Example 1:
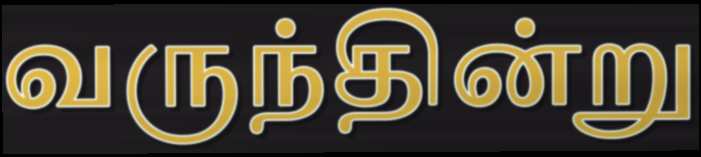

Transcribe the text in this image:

வருந்தின்று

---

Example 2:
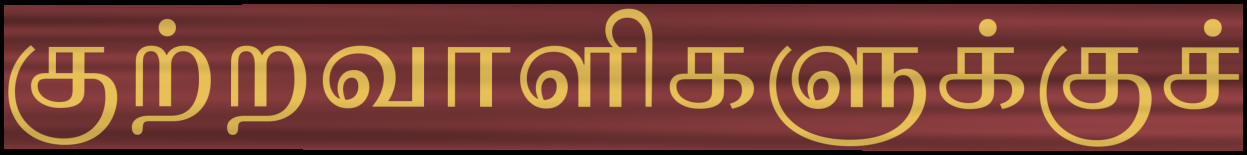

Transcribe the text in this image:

குற்றவாளிகளுக்குச்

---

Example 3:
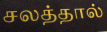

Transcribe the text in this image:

சலத்தால்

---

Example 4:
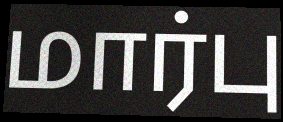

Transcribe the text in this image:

மார்பு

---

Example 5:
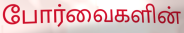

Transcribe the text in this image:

போர்வைகளின்